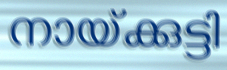
നായ്‌ക്കുട്ടി